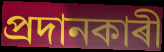
প্ৰদানকাৰী